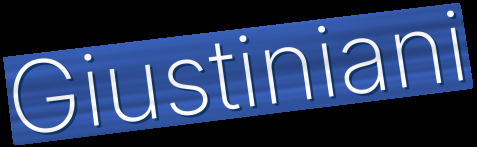
Giustiniani